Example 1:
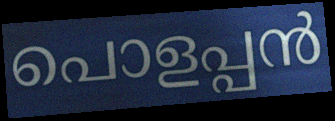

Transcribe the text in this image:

പൊളപ്പൻ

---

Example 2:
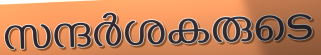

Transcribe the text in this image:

സന്ദർശകരുടെ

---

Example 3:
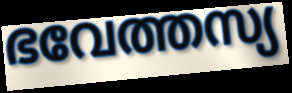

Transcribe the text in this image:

ഭവേത്തസ്യ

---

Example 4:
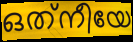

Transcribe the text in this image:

ഒത്‌നീയേ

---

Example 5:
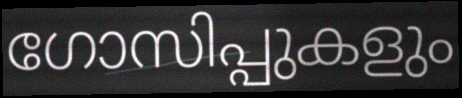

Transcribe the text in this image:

ഗോസിപ്പുകളും